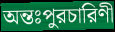
অন্তঃপুরচারিণী